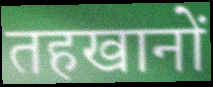
तहखानों